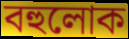
বহুলোক